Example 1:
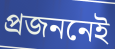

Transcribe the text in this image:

প্রজননেই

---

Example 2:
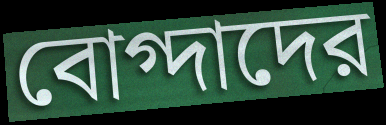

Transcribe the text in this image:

বোগ্দাদের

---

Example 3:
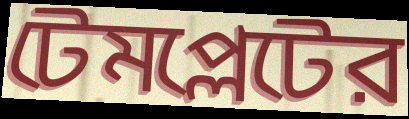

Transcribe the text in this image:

টেমপ্লেটের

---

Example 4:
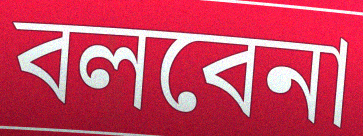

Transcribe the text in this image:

বলবেনা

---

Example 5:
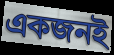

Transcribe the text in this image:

একজনই